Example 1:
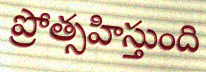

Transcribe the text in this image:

ప్రోత్సహిస్తుంది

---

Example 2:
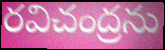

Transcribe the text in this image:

రవిచంద్రను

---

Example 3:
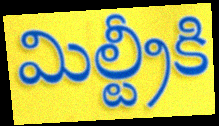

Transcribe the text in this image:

మిల్ట్రీకి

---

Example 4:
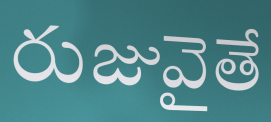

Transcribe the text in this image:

రుజువైతే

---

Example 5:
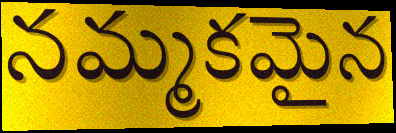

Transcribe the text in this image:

నమ్మకమైన